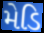
મેડિ